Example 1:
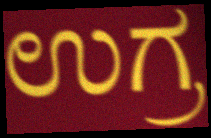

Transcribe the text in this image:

ಉಗ್ರ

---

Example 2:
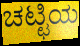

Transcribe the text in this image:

ಚಟ್ಟಿಯ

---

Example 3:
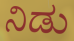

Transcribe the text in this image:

ನಿಡು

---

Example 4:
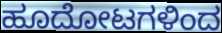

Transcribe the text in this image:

ಹೂದೋಟಗಳಿಂದ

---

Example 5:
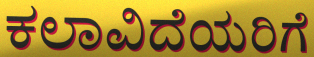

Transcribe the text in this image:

ಕಲಾವಿದೆಯರಿಗೆ